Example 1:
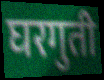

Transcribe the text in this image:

घरगुती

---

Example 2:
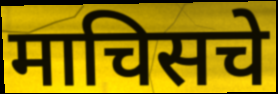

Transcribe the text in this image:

माचिसचे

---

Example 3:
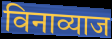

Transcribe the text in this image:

विनाव्याज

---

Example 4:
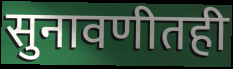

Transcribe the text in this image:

सुनावणीतही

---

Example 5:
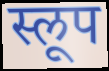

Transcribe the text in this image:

स्लूप